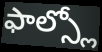
ఫాల్స్లో